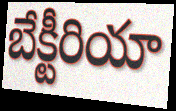
బేక్టీరియా